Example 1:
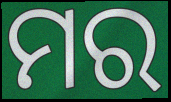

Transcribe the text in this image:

ମର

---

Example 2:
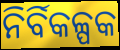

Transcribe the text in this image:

ନିର୍ବିକଳ୍ପକ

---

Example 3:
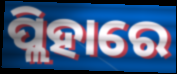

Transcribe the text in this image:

ପ୍ଲିହାରେ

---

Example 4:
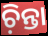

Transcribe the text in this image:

ଚ଼ିନ୍ତା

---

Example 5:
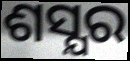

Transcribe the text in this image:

ଶସ୍ଯର